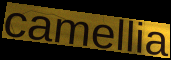
camellia